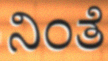
ನಿಂತೆ